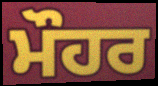
ਮੌਹਰ